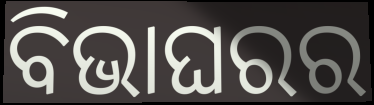
ବିଭାଘରର